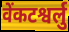
वेंकटश्वर्लु